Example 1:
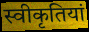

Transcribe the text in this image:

स्वीकृतियां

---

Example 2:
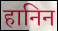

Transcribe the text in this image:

हानिन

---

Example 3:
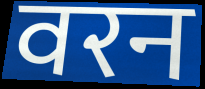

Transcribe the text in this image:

वरन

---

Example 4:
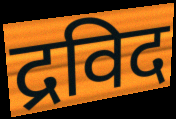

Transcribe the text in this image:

द्रविद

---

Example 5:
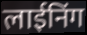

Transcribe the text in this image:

लाईनिंग